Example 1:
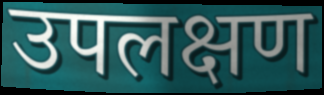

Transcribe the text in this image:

उपलक्षण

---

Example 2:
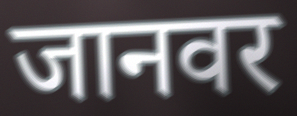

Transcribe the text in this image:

जानवर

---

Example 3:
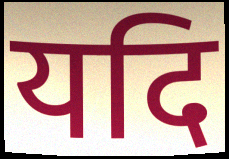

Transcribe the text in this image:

यदि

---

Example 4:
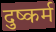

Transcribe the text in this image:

दुष्कर्म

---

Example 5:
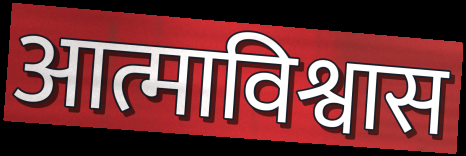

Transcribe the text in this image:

आत्माविश्वास